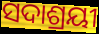
ସଦାଶ୍ରୟୀ